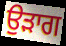
ਉੜਾਗ